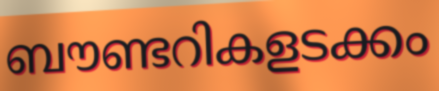
ബൗണ്ടറികളടക്കം